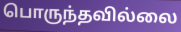
பொருந்தவில்லை